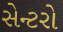
સેન્ટરો